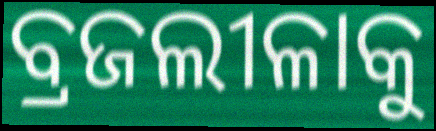
ବ୍ରଜଲୀଳାକୁ